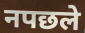
नपछले